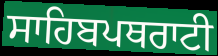
ਸਾਹਿਬਪਥਰਾਟੀ